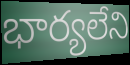
భార్యలేని